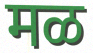
मळ